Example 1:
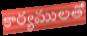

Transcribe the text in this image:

కార్యములతో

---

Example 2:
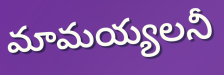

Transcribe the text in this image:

మామయ్యలనీ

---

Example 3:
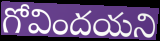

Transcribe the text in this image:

గోవిందయని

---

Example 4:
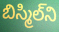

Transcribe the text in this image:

బిస్మిల్‌ని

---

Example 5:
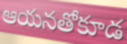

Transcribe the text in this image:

ఆయనతోకూడ